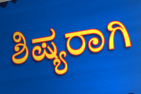
ಶಿಷ್ಯರಾಗಿ